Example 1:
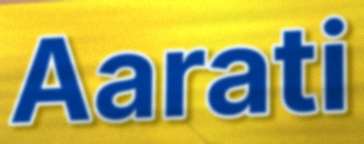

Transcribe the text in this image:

Aarati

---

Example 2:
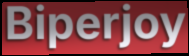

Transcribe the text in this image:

Biperjoy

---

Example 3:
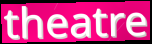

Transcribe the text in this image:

theatre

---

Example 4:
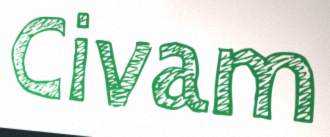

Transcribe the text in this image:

Civam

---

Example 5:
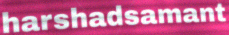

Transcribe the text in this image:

harshadsamant